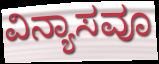
ವಿನ್ಯಾಸವೂ